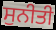
ਸੁਨੀਤੀ